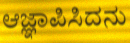
ಆಜ್ಞಾಪಿಸಿದನು